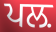
ਪਲ਼